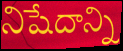
నిషేదాన్ని